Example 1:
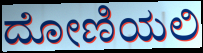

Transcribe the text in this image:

ದೋಣಿಯಲಿ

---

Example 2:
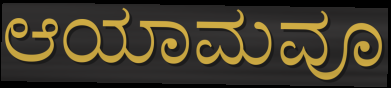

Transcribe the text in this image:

ಆಯಾಮವೂ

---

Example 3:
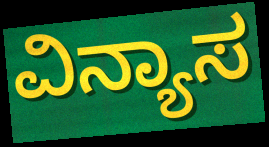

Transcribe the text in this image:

ವಿನ್ಯಾಸ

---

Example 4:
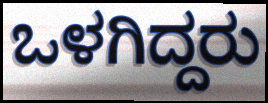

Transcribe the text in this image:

ಒಳಗಿದ್ದರು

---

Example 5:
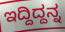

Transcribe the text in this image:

ಇದ್ದಿದ್ದನ್ನ